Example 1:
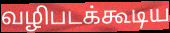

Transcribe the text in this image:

வழிபடக்கூடிய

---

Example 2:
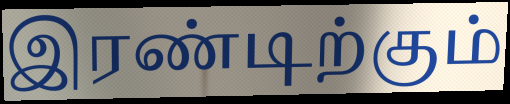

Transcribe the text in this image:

இரண்டிற்கும்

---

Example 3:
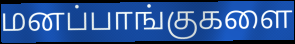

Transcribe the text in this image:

மனப்பாங்குகளை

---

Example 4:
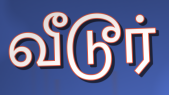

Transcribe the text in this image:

வீடூர்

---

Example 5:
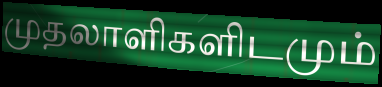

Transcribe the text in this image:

முதலாளிகளிடமும்